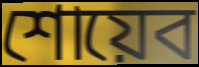
শোয়েব